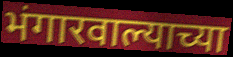
भंगारवाल्याच्या